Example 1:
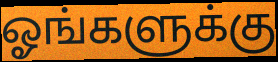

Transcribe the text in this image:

ஓங்களுக்கு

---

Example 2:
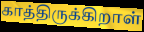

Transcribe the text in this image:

காத்திருக்கிறாள்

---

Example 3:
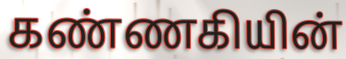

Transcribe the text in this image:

கண்ணகியின்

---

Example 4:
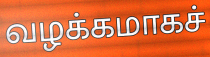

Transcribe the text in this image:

வழக்கமாகச்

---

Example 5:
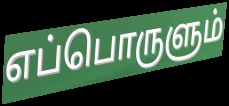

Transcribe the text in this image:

எப்பொருளும்